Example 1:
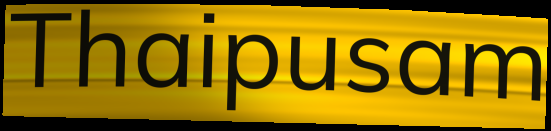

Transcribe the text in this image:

Thaipusam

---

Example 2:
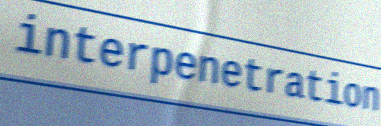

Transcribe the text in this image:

interpenetration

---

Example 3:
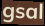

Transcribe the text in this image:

gsal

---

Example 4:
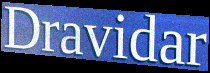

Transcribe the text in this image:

Dravidar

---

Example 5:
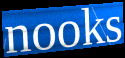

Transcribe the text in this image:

nooks